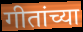
गीतांच्या